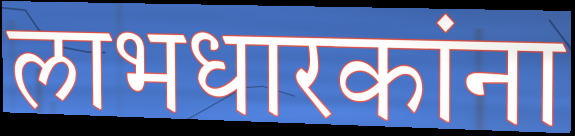
लाभधारकांना